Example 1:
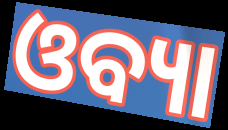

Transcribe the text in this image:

ଓବ୍ୟା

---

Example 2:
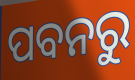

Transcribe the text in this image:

ପବନରୁ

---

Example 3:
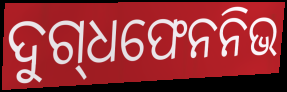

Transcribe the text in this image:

ଦୁଗ୍‍ଧଫେନନିଭ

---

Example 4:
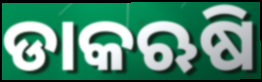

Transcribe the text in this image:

ଡାକଋଷି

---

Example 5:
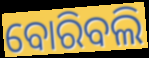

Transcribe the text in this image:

ବୋରିବଲି